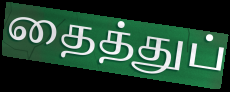
தைத்துப்